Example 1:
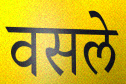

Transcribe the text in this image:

वसले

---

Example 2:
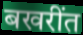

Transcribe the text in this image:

बखरींत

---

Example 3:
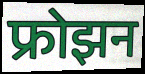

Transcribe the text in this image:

फ्रोझन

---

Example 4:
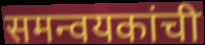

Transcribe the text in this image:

समन्वयकांची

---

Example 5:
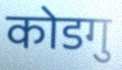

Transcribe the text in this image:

कोडगु